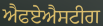
ਐਫਏਐਸਟੀਗ